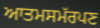
ਆਤਮਸਮੱਰਪਣ